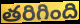
తరిగింది